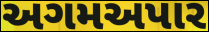
અગમઅપાર